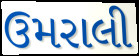
ઉમરાલી